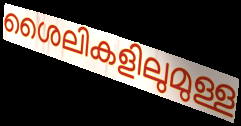
ശൈലികളിലുമുള്ള